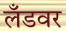
लँडवर